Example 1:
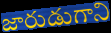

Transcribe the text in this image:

జారుడుగాని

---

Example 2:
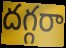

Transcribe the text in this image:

దగ్గరా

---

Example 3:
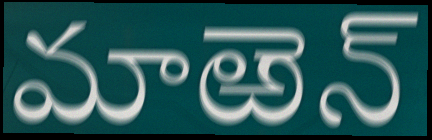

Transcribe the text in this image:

మాఱెన్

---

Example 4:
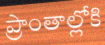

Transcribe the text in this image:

ప్రాంతాల్లోకి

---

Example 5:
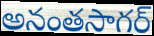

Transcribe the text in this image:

అనంతసాగర్